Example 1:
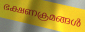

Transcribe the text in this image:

ഭക്ഷണക്രമങ്ങൾ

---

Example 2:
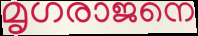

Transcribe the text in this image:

മൃഗരാജനെ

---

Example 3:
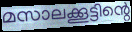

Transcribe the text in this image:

മസാലക്കൂട്ടിന്റെ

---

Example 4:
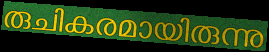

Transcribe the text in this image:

രുചികരമായിരുന്നു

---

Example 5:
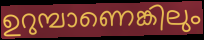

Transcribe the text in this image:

ഉറുമ്പാണെങ്കിലും